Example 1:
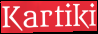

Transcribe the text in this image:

Kartiki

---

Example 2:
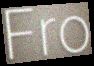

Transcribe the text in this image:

Fro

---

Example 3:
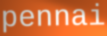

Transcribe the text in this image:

pennai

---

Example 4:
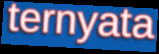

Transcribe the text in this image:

ternyata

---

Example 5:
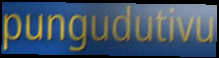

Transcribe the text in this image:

pungudutivu